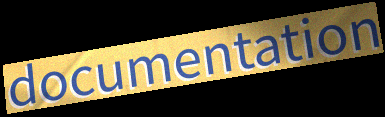
documentation